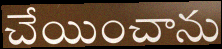
చేయించాను